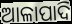
ଆଳାପାଦି